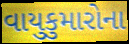
વાયુકુમારોના